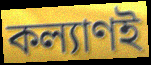
কল্যাণই